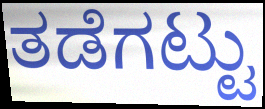
ತಡೆಗಟ್ಟು